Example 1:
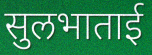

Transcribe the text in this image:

सुलभाताई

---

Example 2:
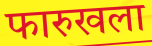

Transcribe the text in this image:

फारुखला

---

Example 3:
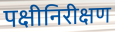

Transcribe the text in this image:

पक्षीनिरीक्षण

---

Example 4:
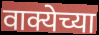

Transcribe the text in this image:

वाक्येच्या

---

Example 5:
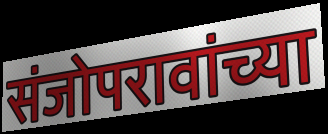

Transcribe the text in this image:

संजोपरावांच्या